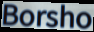
Borsho